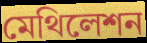
মেথিলেশন